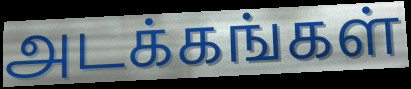
அடக்கங்கள்